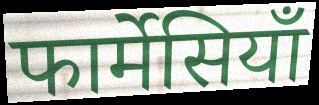
फार्मेसियाँ